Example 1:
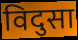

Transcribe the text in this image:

विदुसा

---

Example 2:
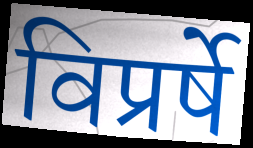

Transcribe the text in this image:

विप्रर्षे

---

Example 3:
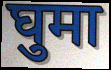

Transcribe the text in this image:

घुमा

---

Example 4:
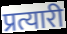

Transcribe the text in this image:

प्रत्यारी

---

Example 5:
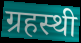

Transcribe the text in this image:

ग्रहस्थी